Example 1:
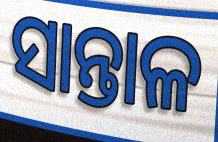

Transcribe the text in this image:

ସାନ୍ତାଳ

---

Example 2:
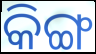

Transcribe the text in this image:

କିଙ୍ଗ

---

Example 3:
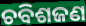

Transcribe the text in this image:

ଚବିଶଜଣ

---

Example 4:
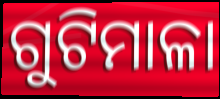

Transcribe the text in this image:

ଗୁଟିମାଳା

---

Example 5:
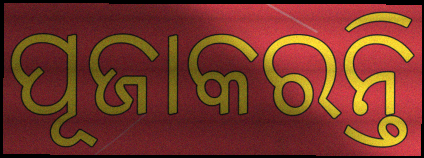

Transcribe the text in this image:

ପୂଜାକରନ୍ତି